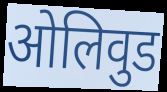
ओलिवुड